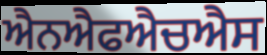
ਐਨਐਫਐਚਐਸ